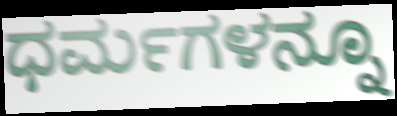
ಧರ್ಮಗಳನ್ನೂ